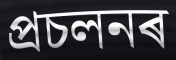
প্ৰচলনৰ